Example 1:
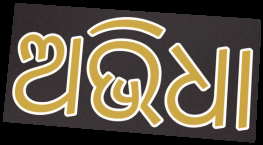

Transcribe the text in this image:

ଅଭିଧା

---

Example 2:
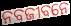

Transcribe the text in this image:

ନବଜୀବନେ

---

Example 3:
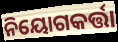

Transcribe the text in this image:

ନିୟୋଗକର୍ତ୍ତା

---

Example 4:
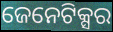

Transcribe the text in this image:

ଜେନେଟିକ୍ସର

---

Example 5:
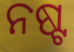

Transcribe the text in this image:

ନଷ୍ଟ